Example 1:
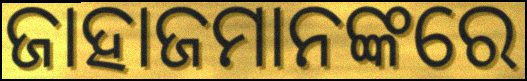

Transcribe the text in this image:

ଜାହାଜମାନଙ୍କରେ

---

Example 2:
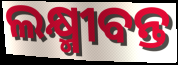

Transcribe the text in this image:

ଲକ୍ଷ୍ମୀବନ୍ତ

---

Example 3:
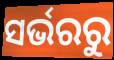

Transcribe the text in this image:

ସର୍ଭରରୁ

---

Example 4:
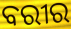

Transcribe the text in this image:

ବରୀର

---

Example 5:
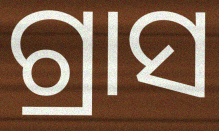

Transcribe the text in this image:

ଗ୍ରାସ